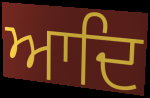
ਆਦਿ